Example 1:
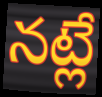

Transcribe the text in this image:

నట్లే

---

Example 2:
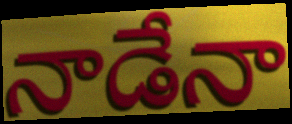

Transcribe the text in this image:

నాడేనా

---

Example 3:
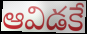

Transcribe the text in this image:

ఆవిడకే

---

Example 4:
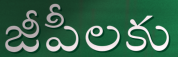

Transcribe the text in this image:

జీపీలకు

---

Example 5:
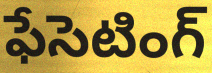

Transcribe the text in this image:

ఫేసెటింగ్